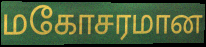
மகோசரமான